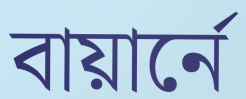
বায়ার্নে